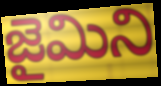
జైమిని